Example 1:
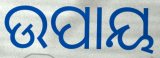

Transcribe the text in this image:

ଉପାୟ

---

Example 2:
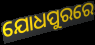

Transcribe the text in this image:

ଯୋଧପୁରରେ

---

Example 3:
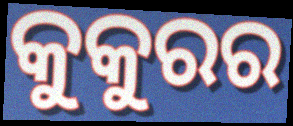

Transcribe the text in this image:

କୁକୁରର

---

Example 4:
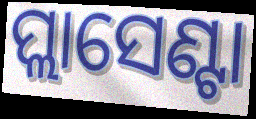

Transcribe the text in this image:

ପ୍ଲାସେଣ୍ଟା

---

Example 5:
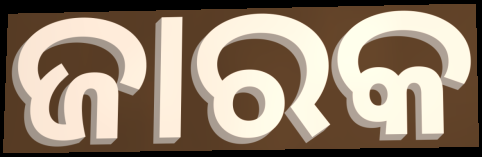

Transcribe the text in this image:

ଜାରକ